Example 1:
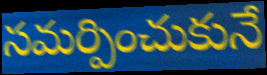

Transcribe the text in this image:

సమర్పించుకునే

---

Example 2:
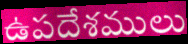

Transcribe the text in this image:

ఉపదేశములు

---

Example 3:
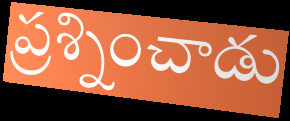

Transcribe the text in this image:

ప్రశ్నించాడు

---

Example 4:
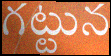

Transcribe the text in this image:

గట్టున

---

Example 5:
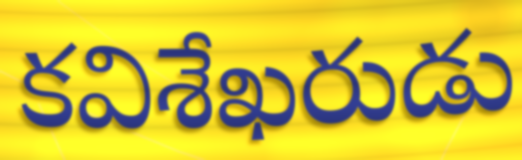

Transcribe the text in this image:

కవిశేఖరుడు